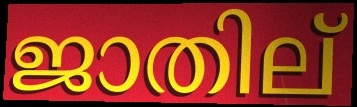
ജാതില്